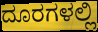
ದೂರಗಳಲ್ಲಿ